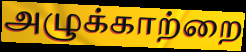
அழுக்காற்றை